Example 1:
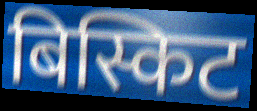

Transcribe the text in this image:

बिस्किट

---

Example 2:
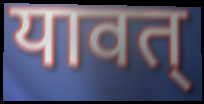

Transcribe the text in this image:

यावत्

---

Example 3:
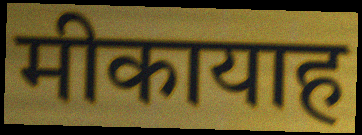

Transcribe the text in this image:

मीकायाह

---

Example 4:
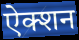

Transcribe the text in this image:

ऐक्शन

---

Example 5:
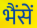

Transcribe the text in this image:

भैंसें